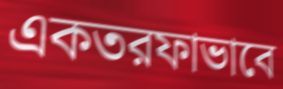
একতরফাভাবে